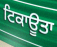
ਟਿਕਾਊਤਾ